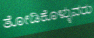
ತೋಡಿಕೊಳ್ಳುವರು